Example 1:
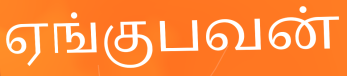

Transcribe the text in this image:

ஏங்குபவன்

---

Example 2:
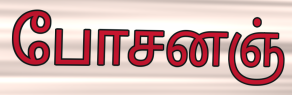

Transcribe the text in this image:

போசனஞ்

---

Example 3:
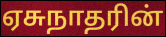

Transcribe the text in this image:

ஏசுநாதரின்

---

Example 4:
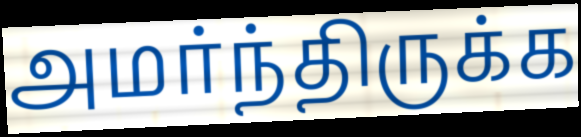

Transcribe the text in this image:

அமர்ந்திருக்க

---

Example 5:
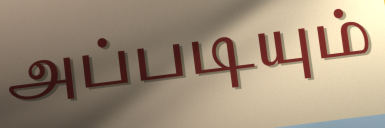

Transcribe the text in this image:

அப்படியும்